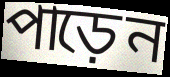
পাড়েন